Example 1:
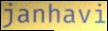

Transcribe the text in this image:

janhavi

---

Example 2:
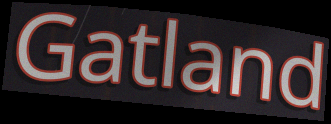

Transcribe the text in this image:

Gatland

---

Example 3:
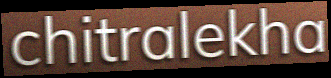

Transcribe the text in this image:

chitralekha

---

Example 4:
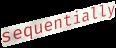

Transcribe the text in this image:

sequentially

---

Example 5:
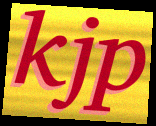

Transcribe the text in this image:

kjp